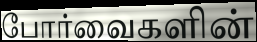
போர்வைகளின்